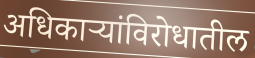
अधिकाऱ्यांविरोधातील